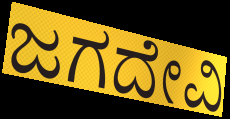
ಜಗದೇವಿ